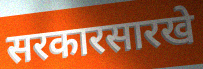
सरकारसारखे